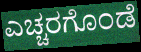
ಎಚ್ಚರಗೊಂಡೆ